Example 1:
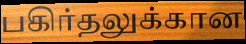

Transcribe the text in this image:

பகிர்தலுக்கான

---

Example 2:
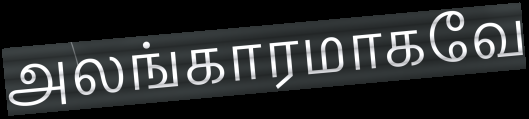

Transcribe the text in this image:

அலங்காரமாகவே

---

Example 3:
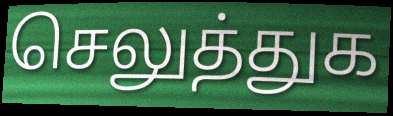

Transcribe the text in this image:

செலுத்துக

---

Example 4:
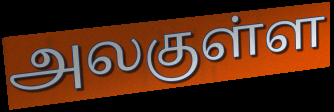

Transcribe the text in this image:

அலகுள்ள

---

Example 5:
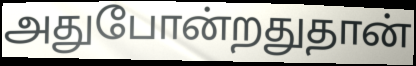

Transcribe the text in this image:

அதுபோன்றதுதான்